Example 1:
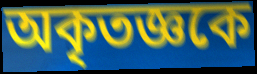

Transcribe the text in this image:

অকৃতজ্ঞকে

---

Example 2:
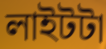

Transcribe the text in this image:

লাইটটা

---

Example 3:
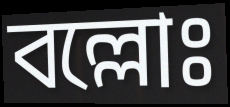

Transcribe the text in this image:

বল্লোঃ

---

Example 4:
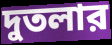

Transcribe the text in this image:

দুতলার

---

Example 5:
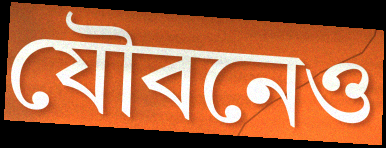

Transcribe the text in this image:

যৌবনেও